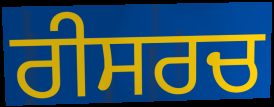
ਰੀਸਰਚ